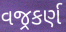
વજ્રકર્ણ